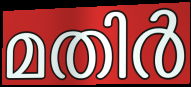
മതിർ